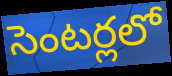
సెంటర్లలో